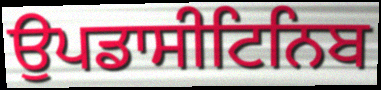
ਉਪਡਾਸੀਟਿਨਿਬ